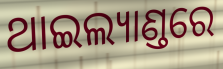
ଥାଇଲ୍ୟାଣ୍ଡରେ